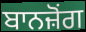
ਬਾਨਜ਼ੋਂਗ